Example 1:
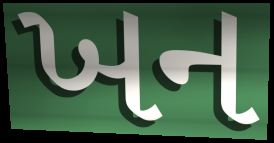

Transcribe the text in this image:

ખન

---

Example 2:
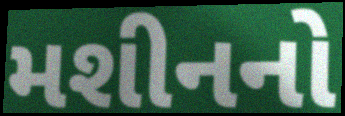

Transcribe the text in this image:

મશીનનો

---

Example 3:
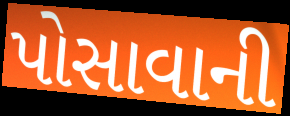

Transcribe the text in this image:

પોસાવાની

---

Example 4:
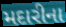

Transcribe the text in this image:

મદારીના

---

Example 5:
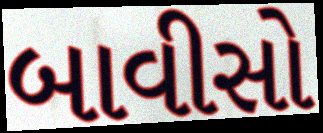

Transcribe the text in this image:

બાવીસો